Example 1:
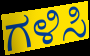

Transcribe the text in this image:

ಗಳಿಸಿ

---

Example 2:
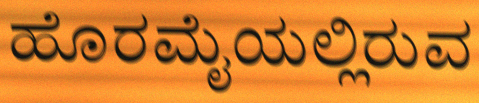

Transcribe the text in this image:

ಹೊರಮೈಯಲ್ಲಿರುವ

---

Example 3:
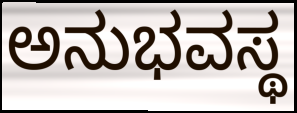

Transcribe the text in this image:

ಅನುಭವಸ್ಥ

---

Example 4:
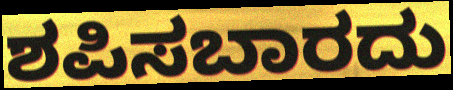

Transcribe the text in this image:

ಶಪಿಸಬಾರದು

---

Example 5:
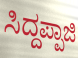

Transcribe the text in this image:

ಸಿದ್ದಪ್ಪಾಜಿ